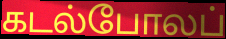
கடல்போலப்